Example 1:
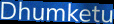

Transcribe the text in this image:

Dhumketu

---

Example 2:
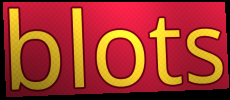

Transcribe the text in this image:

blots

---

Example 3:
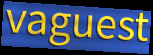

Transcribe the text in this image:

vaguest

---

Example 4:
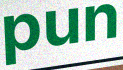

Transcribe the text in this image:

pun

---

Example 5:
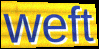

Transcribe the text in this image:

weft